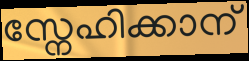
സ്നേഹിക്കാന്